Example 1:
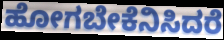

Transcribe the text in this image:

ಹೋಗಬೇಕೆನಿಸಿದರೆ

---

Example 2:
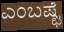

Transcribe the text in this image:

ಎಂಬಷ್ಟೆ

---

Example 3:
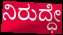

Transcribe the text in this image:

ನಿರುದ್ಧೇ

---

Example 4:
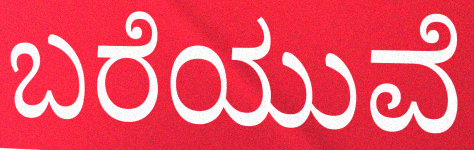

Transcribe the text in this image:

ಬರೆಯುವೆ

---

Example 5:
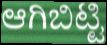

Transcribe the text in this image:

ಆಗಿಬಿಟ್ಟಿ